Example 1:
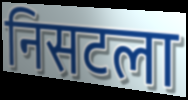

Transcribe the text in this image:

निसटला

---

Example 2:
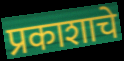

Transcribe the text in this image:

प्रकाशाचे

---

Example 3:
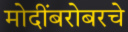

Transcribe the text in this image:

मोदींबरोबरचे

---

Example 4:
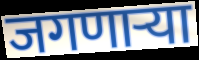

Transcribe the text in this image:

जगणार्‍या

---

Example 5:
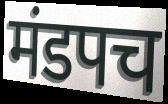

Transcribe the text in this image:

मंडपच